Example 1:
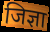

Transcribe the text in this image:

जिज्ञा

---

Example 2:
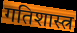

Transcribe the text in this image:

गतिशास्त्र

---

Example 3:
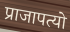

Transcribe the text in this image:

प्राजापत्यो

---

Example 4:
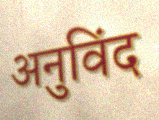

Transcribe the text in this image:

अनुविंद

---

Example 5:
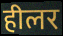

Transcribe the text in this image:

हीलर